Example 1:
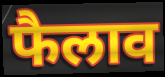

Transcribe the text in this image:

फैलाव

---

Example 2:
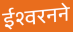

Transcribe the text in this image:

ईश्वरनने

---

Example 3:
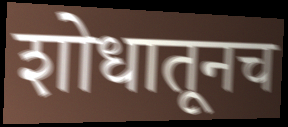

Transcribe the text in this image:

शोधातूनच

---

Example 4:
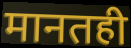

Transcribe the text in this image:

मानतही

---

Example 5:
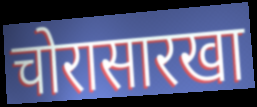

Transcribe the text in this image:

चोरासारखा